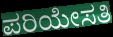
ಪರಿಯೇಸತಿ